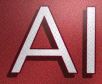
AI